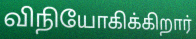
விநியோகிக்கிறார்